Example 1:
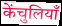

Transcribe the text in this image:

केंचुलियाँ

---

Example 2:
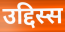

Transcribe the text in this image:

उद्दिस्स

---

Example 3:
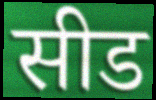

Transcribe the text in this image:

सीड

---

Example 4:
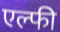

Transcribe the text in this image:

एल्फी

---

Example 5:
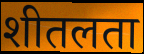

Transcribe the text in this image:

शीतलता